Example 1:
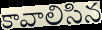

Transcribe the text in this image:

కావాలిసిన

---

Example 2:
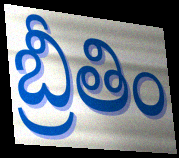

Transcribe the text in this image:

బ్రీతిం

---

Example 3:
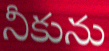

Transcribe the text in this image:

నీకును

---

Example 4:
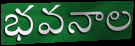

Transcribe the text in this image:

భవనాల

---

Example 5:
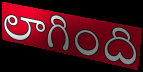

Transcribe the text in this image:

లాగింది